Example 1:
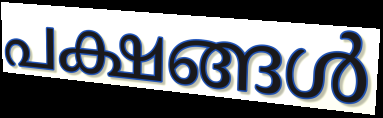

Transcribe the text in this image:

പക്ഷങ്ങൾ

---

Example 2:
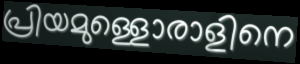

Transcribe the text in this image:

പ്രിയമുള്ളൊരാളിനെ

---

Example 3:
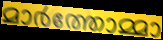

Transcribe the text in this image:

മാർത്തോമ്മാ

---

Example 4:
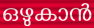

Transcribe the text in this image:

ഒഴുകാൻ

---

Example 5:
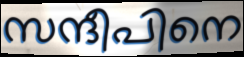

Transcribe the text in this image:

സന്ദീപിനെ